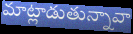
మాట్లాడుతున్నావా